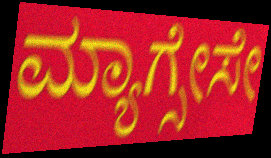
ಮ್ಯಾಗ್ಸೇಸೇ